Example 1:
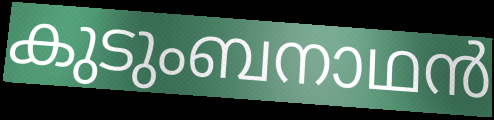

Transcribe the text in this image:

കുടുംബനാഥൻ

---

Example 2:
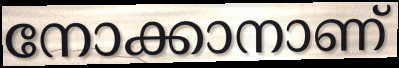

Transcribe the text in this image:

നോക്കാനാണ്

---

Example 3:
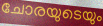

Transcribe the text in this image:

ചോരയുടെയും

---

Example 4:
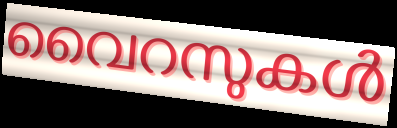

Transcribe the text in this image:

വൈറസുകൾ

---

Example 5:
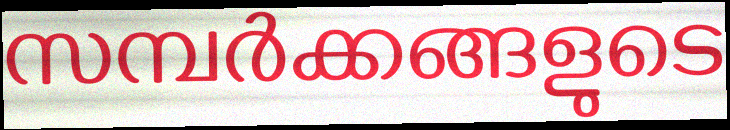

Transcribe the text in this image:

സമ്പർക്കങ്ങളുടെ